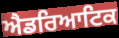
ਐਡਰਿਆਟਿਕ